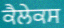
ਕੈਲੇਕਸ